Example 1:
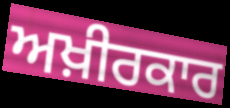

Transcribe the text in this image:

ਅਖ਼ੀਰਕਾਰ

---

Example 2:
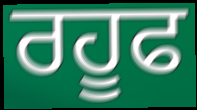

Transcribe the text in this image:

ਰਹੂਫ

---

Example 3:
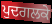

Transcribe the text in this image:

ਪੁਦਗਲਕੇ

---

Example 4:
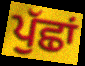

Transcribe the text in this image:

ਪੁੱਛਾਂ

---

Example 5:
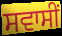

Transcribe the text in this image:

ਸਵਾਸੀਂ